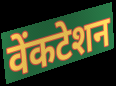
वेंकटेशन